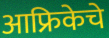
आफ्रिकेचे